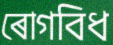
ৰোগবিধ